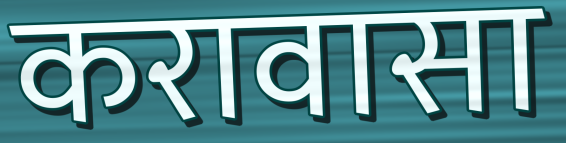
करावासा